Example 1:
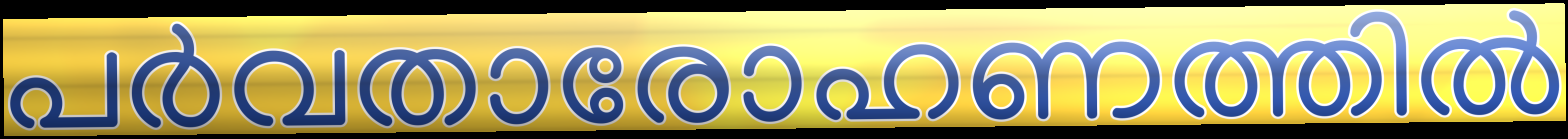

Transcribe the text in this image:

പർവതാരോഹണത്തിൽ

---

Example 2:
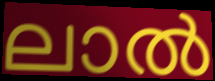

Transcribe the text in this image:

ലാൽ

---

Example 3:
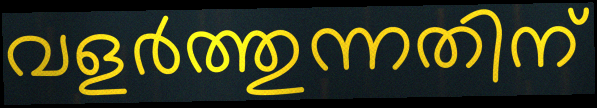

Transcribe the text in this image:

വളർത്തുന്നതിന്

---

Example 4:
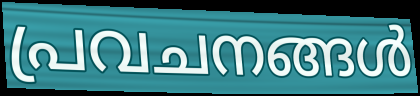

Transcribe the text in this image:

പ്രവചനങ്ങൾ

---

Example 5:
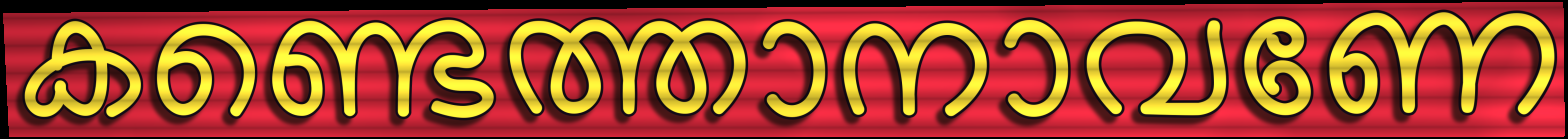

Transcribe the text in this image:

കണ്ടെത്താനാവണേ